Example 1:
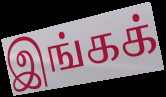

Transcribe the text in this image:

இங்கக்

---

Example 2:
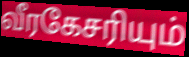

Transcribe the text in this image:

வீரகேசரியும்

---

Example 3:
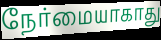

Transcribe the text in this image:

நேர்மையாகாது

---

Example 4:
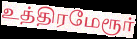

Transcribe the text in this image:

உத்திரமேரூர்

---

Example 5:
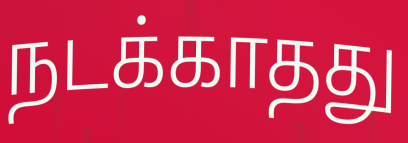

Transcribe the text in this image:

நடக்காதது